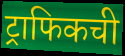
ट्राफिकची